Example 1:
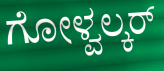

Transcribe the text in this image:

ಗೋಳ್ವಲ್ಕರ್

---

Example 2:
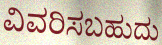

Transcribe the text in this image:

ವಿವರಿಸಬಹುದು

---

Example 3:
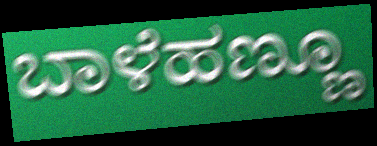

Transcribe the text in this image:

ಬಾಳೆಹಣ್ಣೂ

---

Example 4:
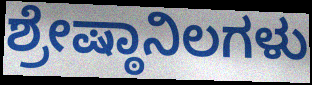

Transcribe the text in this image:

ಶ್ರೇಷ್ಠಾನಿಲಗಳು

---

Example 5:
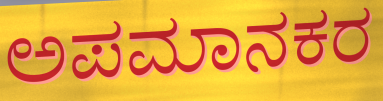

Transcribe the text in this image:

ಅಪಮಾನಕರ